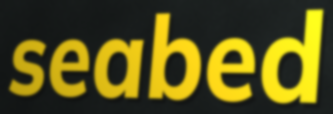
seabed